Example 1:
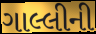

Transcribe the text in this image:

ગાલ્લીની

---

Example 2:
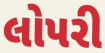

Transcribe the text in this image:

લોપરી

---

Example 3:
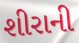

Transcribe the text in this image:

શીરાની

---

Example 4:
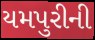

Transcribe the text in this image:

યમપુરીની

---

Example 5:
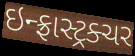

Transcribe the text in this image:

ઇન્ફ્રાસ્ટ્રક્ચર